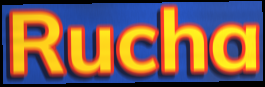
Rucha